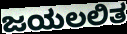
ಜಯಲಲಿತ